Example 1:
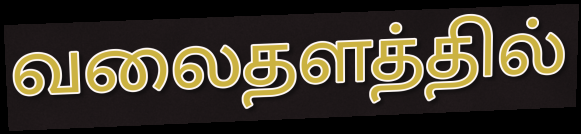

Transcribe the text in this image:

வலைதளத்தில்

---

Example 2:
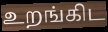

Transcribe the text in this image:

உறங்கிட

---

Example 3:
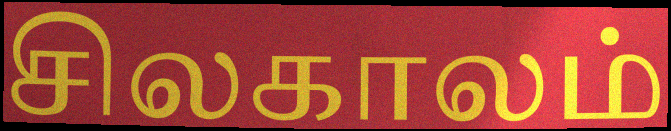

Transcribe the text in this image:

சிலகாலம்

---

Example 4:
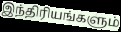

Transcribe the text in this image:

இந்திரியங்களும்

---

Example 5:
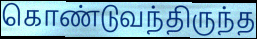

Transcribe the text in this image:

கொண்டுவந்திருந்த